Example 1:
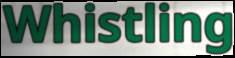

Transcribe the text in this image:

Whistling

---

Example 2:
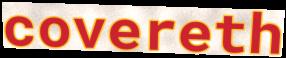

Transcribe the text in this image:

covereth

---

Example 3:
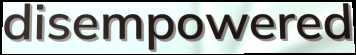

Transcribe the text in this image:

disempowered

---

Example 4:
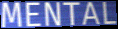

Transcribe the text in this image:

MENTAL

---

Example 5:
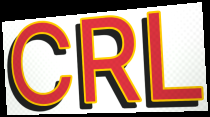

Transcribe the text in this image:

CRL